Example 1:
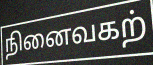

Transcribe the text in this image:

நினைவகற்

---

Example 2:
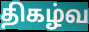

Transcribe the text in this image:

திகழ்வ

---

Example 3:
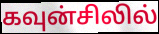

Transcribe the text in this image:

கவுன்சிலில்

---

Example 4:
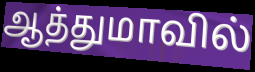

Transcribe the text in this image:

ஆத்துமாவில்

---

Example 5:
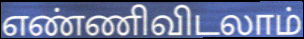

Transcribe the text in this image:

எண்ணிவிடலாம்